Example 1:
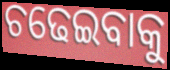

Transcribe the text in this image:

ଚଢେଇବାକୁ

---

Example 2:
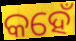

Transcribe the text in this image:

କହେଁ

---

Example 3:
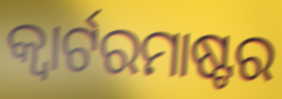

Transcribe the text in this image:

କ୍ୱାର୍ଟରମାଷ୍ଟର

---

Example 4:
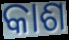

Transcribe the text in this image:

କାଶ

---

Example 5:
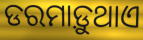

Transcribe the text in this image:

ଡରମାଡ଼ୁଥାଏ